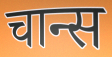
चान्स